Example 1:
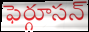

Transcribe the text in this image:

ఫెర్గూసన్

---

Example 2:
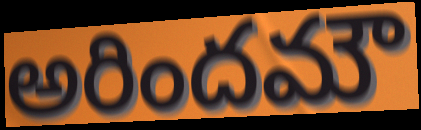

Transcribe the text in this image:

అరిందమౌ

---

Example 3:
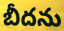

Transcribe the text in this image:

బీదను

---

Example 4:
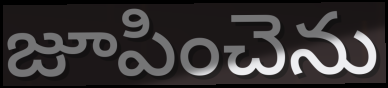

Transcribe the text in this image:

జూపించెను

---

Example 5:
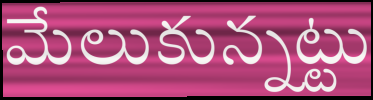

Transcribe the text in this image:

మేలుకున్నట్టు